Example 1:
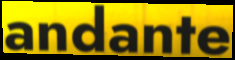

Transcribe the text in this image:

andante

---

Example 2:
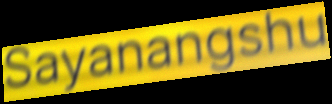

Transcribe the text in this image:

Sayanangshu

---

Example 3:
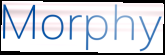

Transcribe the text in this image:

Morphy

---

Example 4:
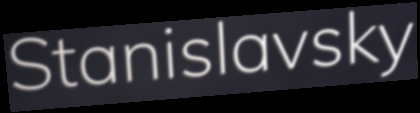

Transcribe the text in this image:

Stanislavsky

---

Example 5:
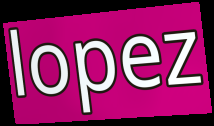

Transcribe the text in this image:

lopez